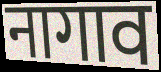
नागाव